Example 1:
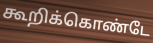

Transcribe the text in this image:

கூறிக்கொண்டே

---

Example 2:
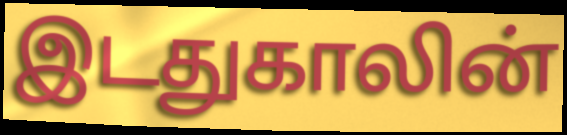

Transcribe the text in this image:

இடதுகாலின்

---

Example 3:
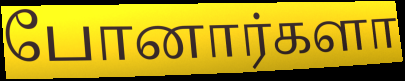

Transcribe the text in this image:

போனார்களா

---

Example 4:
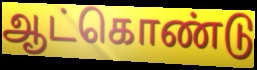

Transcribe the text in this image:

ஆட்கொண்டு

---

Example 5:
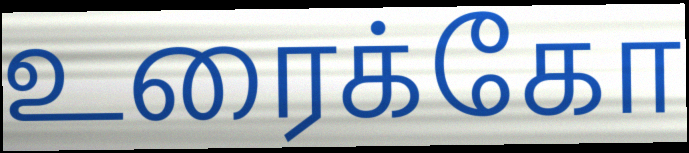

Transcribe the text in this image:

உரைக்கோ